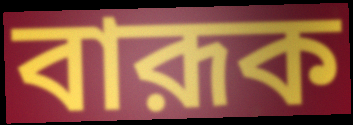
বারূক